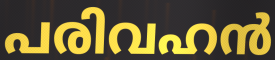
പരിവഹൻ